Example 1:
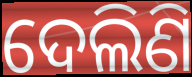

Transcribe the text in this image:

ଦେଲିଣି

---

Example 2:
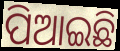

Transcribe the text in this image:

ପିଆଇଛି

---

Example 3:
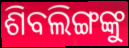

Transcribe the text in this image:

ଶିବଲିଙ୍ଗଙ୍କୁ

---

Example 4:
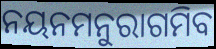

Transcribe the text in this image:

ନୟନମନୁରାଗମିବ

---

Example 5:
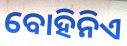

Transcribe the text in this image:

ବୋହିନିଏ